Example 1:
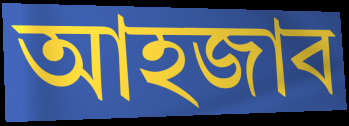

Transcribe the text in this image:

আহজাব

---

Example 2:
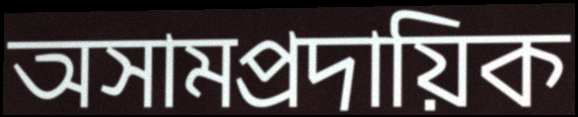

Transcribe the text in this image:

অসামপ্রদায়িক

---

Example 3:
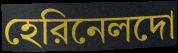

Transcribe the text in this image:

হেরিনেলদো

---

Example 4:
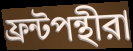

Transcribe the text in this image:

ফ্রন্টপন্থীরা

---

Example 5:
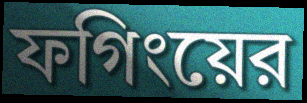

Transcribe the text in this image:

ফগিংয়ের